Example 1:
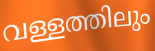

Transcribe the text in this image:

വള്ളത്തിലും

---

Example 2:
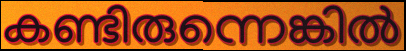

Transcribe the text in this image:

കണ്ടിരുന്നെങ്കിൽ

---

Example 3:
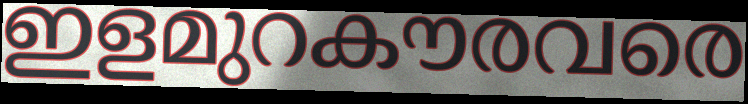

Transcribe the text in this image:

ഇളമുറകൗരവരെ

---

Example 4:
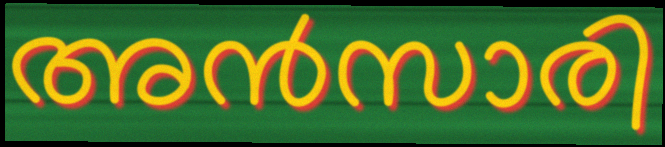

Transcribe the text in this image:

അൻസാരി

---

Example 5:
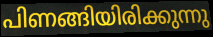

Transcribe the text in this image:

പിണങ്ങിയിരിക്കുന്നു